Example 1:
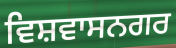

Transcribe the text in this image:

ਵਿਸ਼ਵਾਸਨਗਰ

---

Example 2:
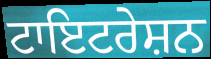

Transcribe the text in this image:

ਟਾਇਟਰੇਸ਼ਨ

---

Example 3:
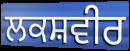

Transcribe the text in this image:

ਲਕਸ਼ਵੀਰ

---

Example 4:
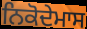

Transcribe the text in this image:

ਨਿਕੋਦੇਮਾਸ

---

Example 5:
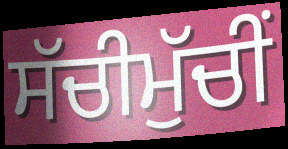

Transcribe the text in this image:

ਸੱਚੀਮੁੱਚੀਂ